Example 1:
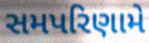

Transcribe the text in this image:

સમપરિણામે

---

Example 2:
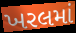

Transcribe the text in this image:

ખરલમાં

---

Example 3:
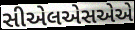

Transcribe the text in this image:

સીએલએસએએ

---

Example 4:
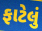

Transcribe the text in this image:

ફાટેલું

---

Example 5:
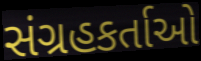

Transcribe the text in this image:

સંગ્રહકર્તાઓ